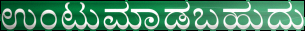
ಉಂಟುಮಾಡಬಹುದು